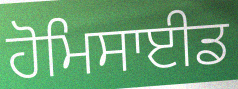
ਹੋਮਿਸਾਈਡ